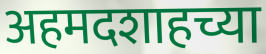
अहमदशाहच्या